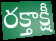
రక్తాక్షీ